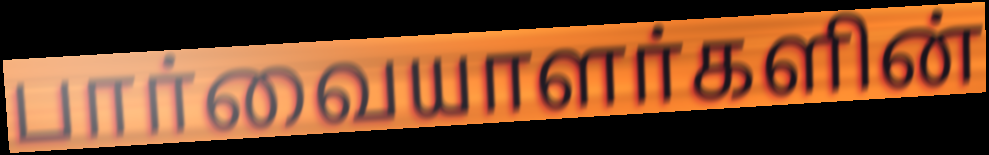
பார்வையாளர்களின்